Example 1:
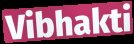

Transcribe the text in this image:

Vibhakti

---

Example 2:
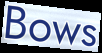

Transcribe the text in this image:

Bows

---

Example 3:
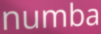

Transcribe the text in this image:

numba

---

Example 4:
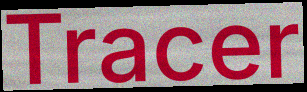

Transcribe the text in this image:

Tracer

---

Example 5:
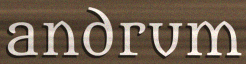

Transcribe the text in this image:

andrum